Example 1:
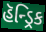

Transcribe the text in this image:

હૅન્ડ્રિક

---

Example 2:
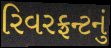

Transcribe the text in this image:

રિવરફ્રન્ટનું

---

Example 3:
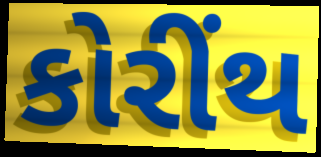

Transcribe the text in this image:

કોરીંથ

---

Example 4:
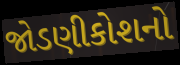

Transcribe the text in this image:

જોડણીકોશનો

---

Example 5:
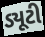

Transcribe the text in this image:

ડ્યૂટી